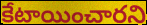
కేటాయించారని